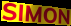
SIMON